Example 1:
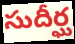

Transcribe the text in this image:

సుదీర్ఘ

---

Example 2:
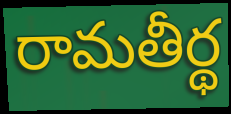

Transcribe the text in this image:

రామతీర్థ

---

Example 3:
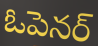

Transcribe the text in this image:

ఓపెనర్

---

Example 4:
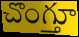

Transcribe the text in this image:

చొంగ్తూ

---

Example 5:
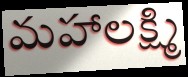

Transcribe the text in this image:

మహాలక్ష్మి